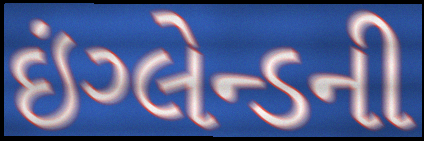
ઇંગ્લેન્ડની